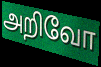
அறிவோ